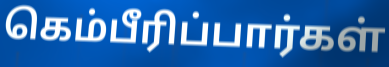
கெம்பீரிப்பார்கள்